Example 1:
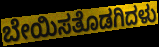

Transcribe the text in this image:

ಬೇಯಿಸತೊಡಗಿದಳು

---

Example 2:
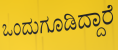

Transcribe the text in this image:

ಒಂದುಗೂಡಿದ್ದಾರೆ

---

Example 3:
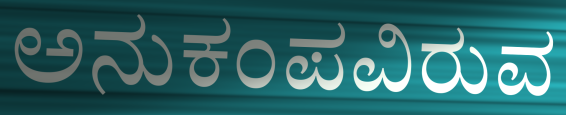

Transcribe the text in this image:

ಅನುಕಂಪವಿರುವ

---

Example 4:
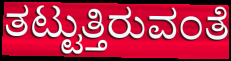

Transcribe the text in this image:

ತಟ್ಟುತ್ತಿರುವಂತೆ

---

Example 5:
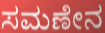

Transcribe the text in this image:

ಸಮಣೇನ